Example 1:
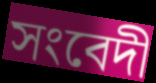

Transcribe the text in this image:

সংবেদী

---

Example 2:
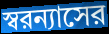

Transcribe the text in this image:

স্বরন্যাসের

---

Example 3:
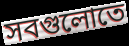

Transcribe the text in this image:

সবগুলোতে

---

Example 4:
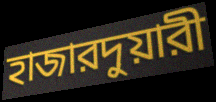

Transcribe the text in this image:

হাজারদুয়ারী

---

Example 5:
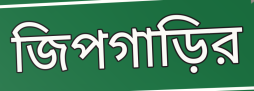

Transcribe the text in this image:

জিপগাড়ির